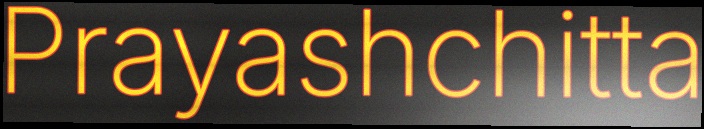
Prayashchitta